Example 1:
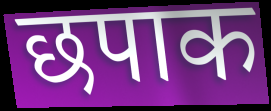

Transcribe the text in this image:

छपाक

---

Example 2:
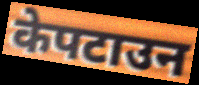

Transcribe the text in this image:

केपटाउन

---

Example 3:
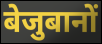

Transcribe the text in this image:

बेजुबानों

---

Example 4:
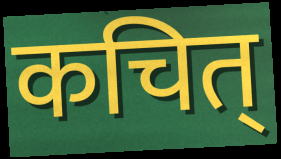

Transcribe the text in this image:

कचित्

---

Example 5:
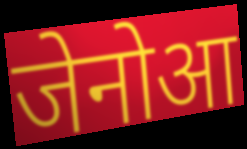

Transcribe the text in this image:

जेनोआ